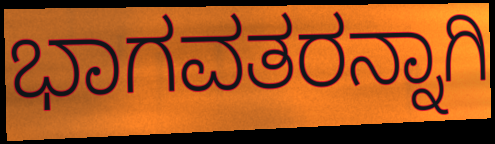
ಭಾಗವತರನ್ನಾಗಿ